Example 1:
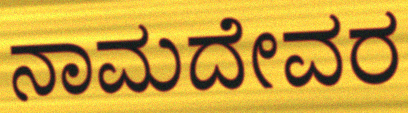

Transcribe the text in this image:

ನಾಮದೇವರ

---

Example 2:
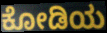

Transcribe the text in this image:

ಕೋಡಿಯ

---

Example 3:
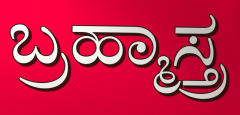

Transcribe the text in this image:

ಬ್ರಹ್ಮಾಸ್ತ್ರ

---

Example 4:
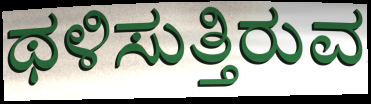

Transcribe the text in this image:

ಥಳಿಸುತ್ತಿರುವ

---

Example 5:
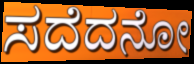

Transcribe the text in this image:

ಸದೆದನೋ